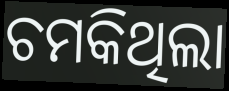
ଚମକିଥିଲା